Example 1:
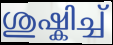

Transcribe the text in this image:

ശുഷ്കിച്ച്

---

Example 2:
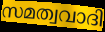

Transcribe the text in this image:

സമത്വവാദി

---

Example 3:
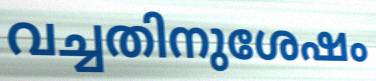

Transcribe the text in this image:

വച്ചതിനുശേഷം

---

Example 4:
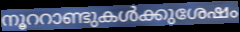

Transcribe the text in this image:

നൂററാണ്ടുകൾക്കുശേഷം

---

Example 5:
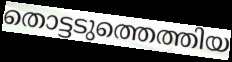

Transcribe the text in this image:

തൊട്ടടുത്തെത്തിയ